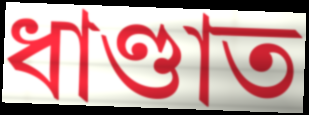
ধাণ্ডাত